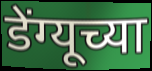
डेंग्यूच्या